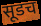
सूडच